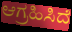
ಆಗ್ರಹಿಸಿದೆ